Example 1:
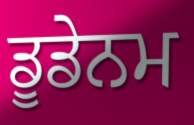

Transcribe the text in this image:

ਡੂਡੇਨਮ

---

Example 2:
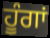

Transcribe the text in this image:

ਹੂੰਗਾਂ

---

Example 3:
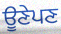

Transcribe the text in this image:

ਊਣੇਪਣ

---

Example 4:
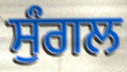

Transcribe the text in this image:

ਸੁੰਗਲ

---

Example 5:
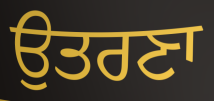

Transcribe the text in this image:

ਉਤਰਣਾ